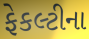
ફેકલ્ટીના